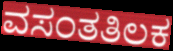
ವಸಂತತಿಲಕ